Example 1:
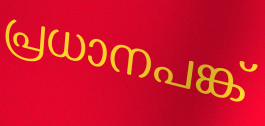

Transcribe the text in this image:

പ്രധാനപങ്ക്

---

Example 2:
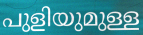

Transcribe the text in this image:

പുളിയുമുള്ള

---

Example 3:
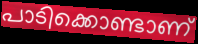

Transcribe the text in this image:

പാടിക്കൊണ്ടാണ്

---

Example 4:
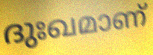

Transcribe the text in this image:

ദുഃഖമാണ്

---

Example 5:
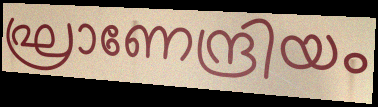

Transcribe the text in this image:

ഘ്രാണേന്ദ്രിയം